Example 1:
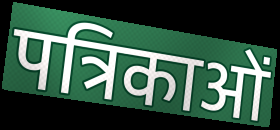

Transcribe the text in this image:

पत्रिकाओं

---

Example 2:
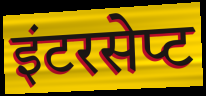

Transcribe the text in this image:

इंटरसेप्‍ट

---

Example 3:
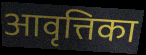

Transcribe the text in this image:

आवृत्तिका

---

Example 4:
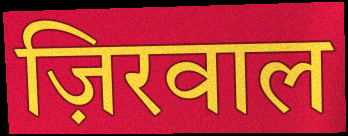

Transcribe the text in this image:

ज़िरवाल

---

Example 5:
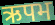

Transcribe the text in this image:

ऋपभ